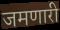
जमणारी